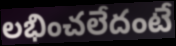
లభించలేదంటే